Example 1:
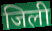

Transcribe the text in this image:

जिली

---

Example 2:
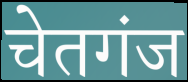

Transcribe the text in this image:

चेतगंज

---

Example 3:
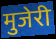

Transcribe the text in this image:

मुजेरी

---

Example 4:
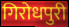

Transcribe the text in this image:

गिरोधपुरी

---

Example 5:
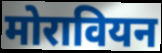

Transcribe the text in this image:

मोरावियन